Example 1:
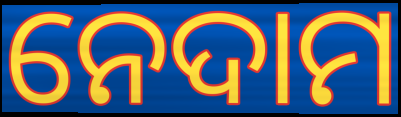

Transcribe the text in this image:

ନେଦାମ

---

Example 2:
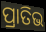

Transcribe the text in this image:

ପ୍ରାତିଭ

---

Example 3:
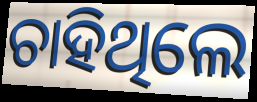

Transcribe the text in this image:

ଚାହିଥିଲେ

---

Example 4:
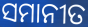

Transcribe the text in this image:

ସମାନୀତ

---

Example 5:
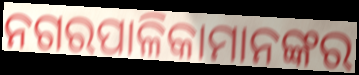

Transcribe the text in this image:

ନଗରପାଳିକାମାନଙ୍କର